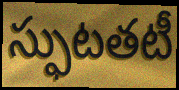
స్ఫుటతటీ